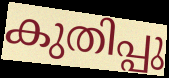
കുതിപ്പു